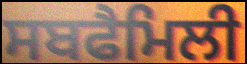
ਸਬਫੈਮਿਲੀ